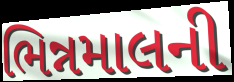
ભિન્નમાલની